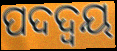
ପଦଦ୍ଵୟ